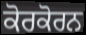
ਕੋਰਕੋਰਨ